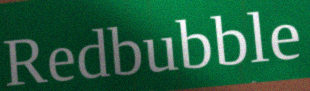
Redbubble